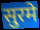
सुरमे